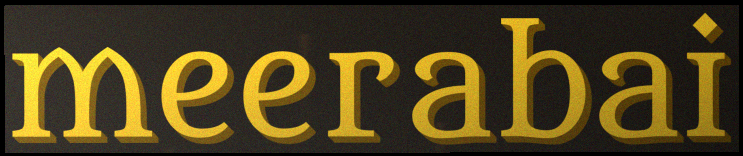
meerabai